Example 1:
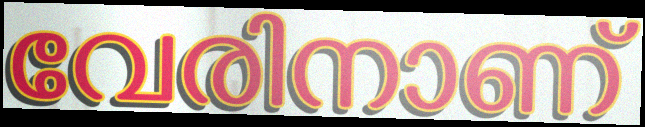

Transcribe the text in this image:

വേരിനാണ്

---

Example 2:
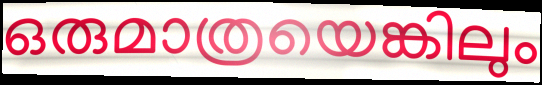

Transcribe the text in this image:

ഒരുമാത്രയെങ്കിലും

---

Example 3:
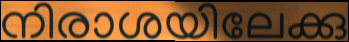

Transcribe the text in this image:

നിരാശയിലേക്കു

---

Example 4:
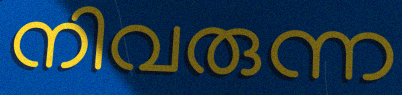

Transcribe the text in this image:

നിവരുന്ന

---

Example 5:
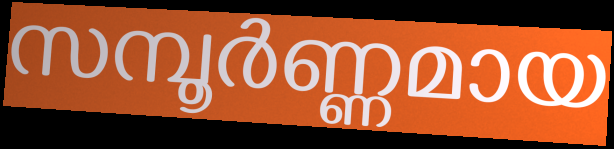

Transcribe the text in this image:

സമ്പൂർണ്ണമായ